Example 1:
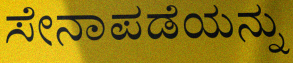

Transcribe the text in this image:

ಸೇನಾಪಡೆಯನ್ನು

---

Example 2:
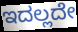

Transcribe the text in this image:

ಇದಲ್ಲದೇ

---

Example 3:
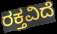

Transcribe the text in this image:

ರಕ್ತವಿದೆ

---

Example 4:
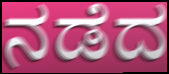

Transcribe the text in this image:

ನಡೆದ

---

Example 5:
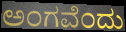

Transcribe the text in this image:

ಅಂಗವೆಂದು